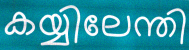
കയ്യിലേന്തി